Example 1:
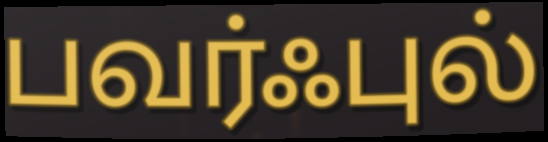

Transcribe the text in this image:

பவர்ஃபுல்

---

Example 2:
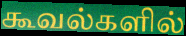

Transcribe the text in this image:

கூவல்களில்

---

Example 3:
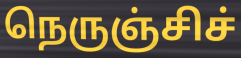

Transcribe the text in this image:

நெருஞ்சிச்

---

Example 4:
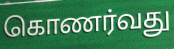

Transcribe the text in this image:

கொணர்வது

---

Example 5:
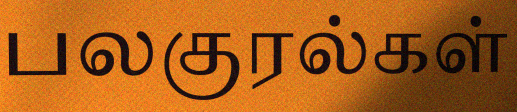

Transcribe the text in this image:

பலகுரல்கள்